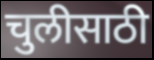
चुलीसाठी